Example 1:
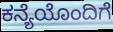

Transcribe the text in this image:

ಕನ್ಯೆಯೊಂದಿಗೆ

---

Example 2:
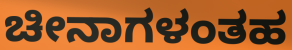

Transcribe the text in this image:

ಚೀನಾಗಳಂತಹ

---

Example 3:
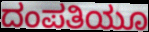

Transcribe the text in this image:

ದಂಪತಿಯೂ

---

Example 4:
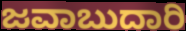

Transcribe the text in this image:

ಜವಾಬುದಾರಿ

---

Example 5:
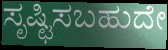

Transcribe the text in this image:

ಸೃಷ್ಟಿಸಬಹುದೇ